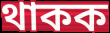
থাকক